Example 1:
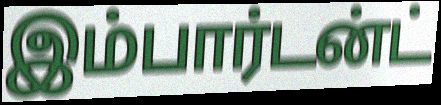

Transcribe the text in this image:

இம்பார்டன்ட்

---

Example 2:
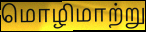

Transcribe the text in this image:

மொழிமாற்று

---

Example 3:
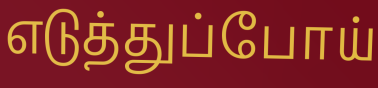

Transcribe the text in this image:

எடுத்துப்போய்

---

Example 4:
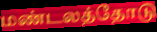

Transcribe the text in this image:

மண்டலத்தோடு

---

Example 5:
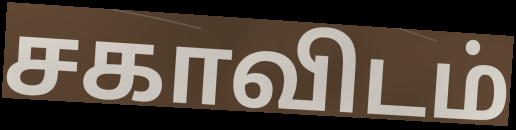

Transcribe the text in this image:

சகாவிடம்